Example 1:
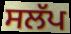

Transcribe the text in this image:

ਸਲੱਪ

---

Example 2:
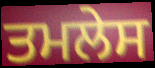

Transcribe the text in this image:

ਤਮਲੇਸ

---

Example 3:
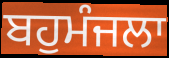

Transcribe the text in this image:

ਬਹੁਮੰਜਲਾ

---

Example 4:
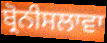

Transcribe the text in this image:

ਬ੍ਰੋਨੀਸਲਾਵਾ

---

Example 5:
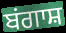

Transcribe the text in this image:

ਬਂਗਾਸ਼